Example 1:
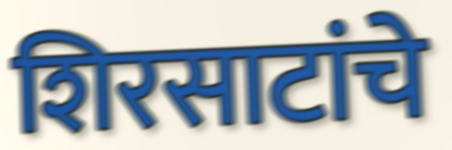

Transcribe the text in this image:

शिरसाटांचे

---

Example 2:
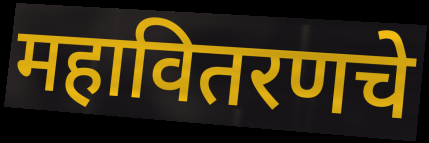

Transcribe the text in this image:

महावितरणचे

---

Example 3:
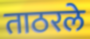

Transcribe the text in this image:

ताठरले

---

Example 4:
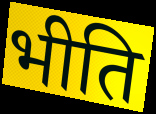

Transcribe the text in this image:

भीति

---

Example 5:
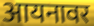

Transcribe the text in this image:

आयनावर